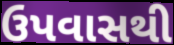
ઉપવાસથી